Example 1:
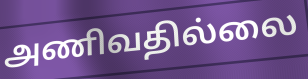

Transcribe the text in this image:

அணிவதில்லை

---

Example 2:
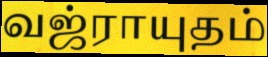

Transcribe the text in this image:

வஜ்ராயுதம்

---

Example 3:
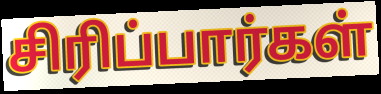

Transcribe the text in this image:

சிரிப்பார்கள்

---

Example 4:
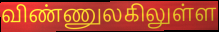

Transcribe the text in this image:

விண்ணுலகிலுள்ள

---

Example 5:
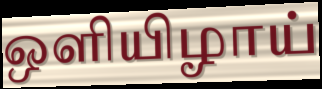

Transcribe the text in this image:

ஒளியிழாய்